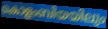
കൊളംബിയയിലും